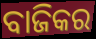
ବାଜିକର